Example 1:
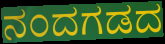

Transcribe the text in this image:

ನಂದಗಡದ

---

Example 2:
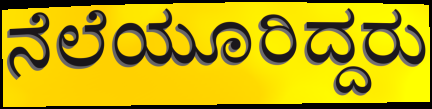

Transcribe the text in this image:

ನೆಲೆಯೂರಿದ್ದರು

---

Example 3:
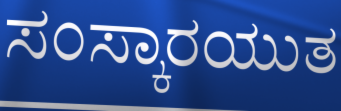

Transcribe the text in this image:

ಸಂಸ್ಕಾರಯುತ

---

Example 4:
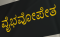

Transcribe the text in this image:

ವೈಭವೋಪೇತ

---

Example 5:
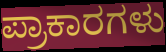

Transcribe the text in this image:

ಪ್ರಾಕಾರಗಳು